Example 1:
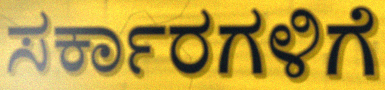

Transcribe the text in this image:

ಸರ್ಕಾರಗಳಿಗೆ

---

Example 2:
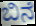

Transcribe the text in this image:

ಬಿನೆ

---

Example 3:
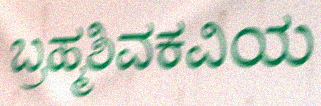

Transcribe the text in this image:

ಬ್ರಹ್ಮಶಿವಕವಿಯ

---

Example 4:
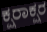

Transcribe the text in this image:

ಕ್ಷರಾಕ್ಷರ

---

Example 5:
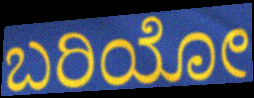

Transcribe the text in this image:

ಬರಿಯೋ